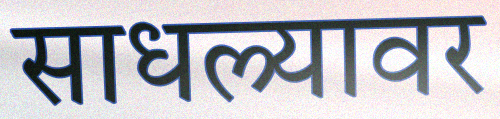
साधल्यावर